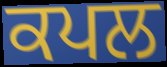
ਕਪਲ